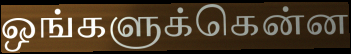
ஒங்களுக்கென்ன